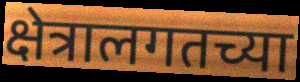
क्षेत्रालगतच्या